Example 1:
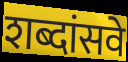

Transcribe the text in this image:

शब्दांसवे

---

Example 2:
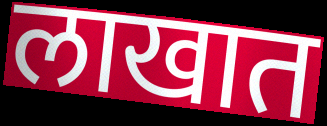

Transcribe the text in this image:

लाखात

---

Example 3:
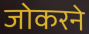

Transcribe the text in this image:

जोकरने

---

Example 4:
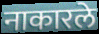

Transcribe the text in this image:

नाकारले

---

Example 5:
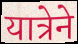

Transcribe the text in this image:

यात्रेने